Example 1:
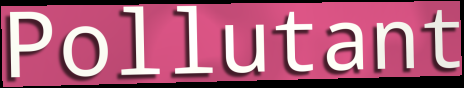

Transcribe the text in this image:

Pollutant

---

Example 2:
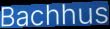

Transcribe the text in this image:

Bachhus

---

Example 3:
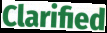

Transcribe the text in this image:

Clarified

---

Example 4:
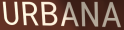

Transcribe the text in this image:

URBANA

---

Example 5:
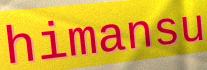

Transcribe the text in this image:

himansu